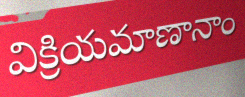
విక్రియమాణానాం